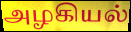
அழகியல்